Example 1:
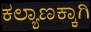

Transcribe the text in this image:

ಕಲ್ಯಾಣಕ್ಕಾಗಿ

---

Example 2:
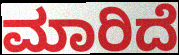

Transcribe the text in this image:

ಮಾರಿದೆ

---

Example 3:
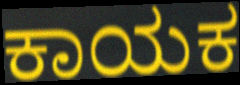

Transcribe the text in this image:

ಕಾಯಕ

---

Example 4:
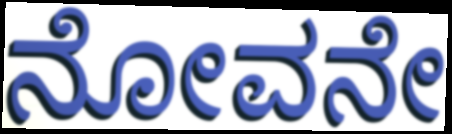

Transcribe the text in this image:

ನೋವನೇ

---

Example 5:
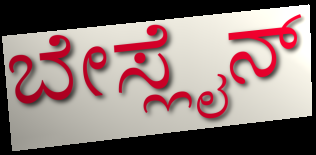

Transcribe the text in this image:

ಬೇಸ್ಲೈನ್